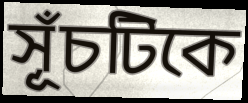
সূঁচটিকে